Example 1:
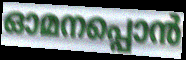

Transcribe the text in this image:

ഓമനപ്പൊൻ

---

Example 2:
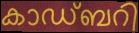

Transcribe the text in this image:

കാഡ്ബറി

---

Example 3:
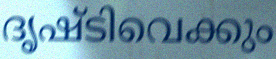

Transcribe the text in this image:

ദൃഷ്ടിവെക്കും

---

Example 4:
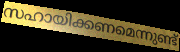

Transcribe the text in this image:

സഹായിക്കണമെന്നുണ്ട്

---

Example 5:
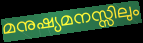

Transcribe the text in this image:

മനുഷ്യമനസ്സിലും